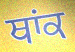
ਥਾਂਕ